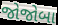
જોજોબા